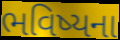
ભવિષ્યના